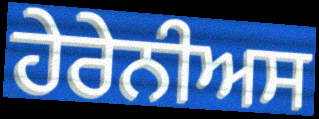
ਹੇਰੇਨੀਅਸ